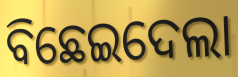
ବିଛେଇଦେଲା